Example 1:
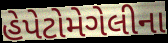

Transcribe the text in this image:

હેપેટોમેગેલીના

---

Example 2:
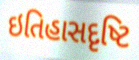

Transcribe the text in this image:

ઇતિહાસદૃષ્ટિ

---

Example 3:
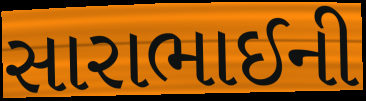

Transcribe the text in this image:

સારાભાઈની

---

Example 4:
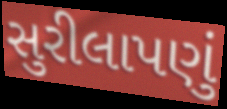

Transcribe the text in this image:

સુરીલાપણું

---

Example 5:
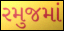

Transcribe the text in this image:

રમુજમાં